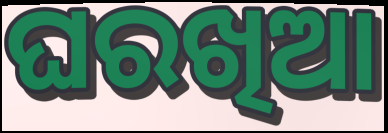
ଘରଖିଆ